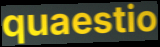
quaestio